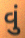
વું